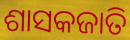
ଶାସକଜାତି